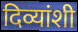
दिव्यांशी